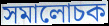
সমালোচক